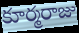
కూర్మరాజు